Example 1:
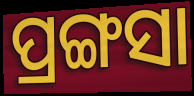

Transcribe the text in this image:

ପ୍ରଙ୍ଗସା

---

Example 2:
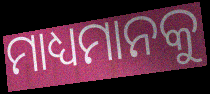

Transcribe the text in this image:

ମାଧ୍ୟମାନକୁ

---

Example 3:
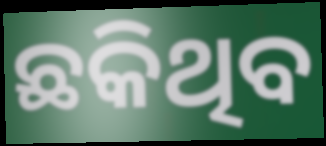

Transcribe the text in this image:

ଛକିଥିବ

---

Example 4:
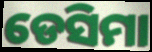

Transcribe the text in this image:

ଡେସିମା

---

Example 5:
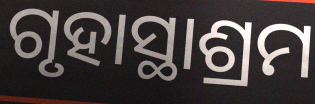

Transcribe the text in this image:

ଗୃହାସ୍ଥାଶ୍ରମ